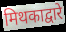
मिथकाद्वारे